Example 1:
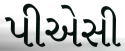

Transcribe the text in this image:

પીએસી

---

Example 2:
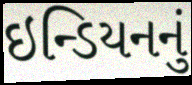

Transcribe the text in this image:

ઇન્ડિયનનું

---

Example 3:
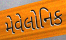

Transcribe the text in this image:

મેવેલોનિક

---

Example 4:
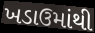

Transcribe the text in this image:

ખડાઉમાંથી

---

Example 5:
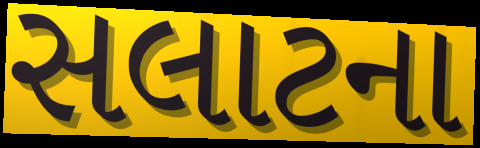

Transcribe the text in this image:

સલાટના